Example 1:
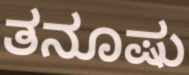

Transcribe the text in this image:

ತನೂಷು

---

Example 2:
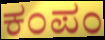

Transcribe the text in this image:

ಕಂಪಂ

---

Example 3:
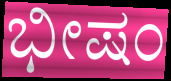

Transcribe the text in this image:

ಭೀಷಂ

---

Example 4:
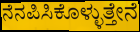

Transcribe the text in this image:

ನೆನಪಿಸಿಕೊಳ್ಳುತ್ತೇನೆ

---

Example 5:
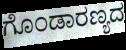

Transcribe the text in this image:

ಗೊಂಡಾರಣ್ಯದ